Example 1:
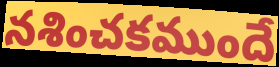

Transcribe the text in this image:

నశించకముందే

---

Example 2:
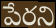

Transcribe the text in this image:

పేరని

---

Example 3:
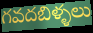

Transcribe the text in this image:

గవదబిళ్ళలు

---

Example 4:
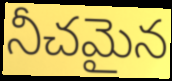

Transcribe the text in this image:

నీచమైన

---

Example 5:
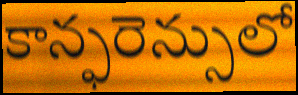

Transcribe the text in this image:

కాన్ఫరెన్సులో